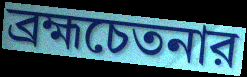
ব্রহ্মচেতনার